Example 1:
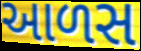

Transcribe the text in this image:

આળસ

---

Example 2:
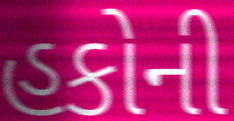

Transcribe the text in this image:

હકોની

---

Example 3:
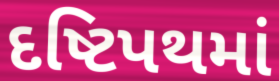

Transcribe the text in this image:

દષ્ટિપથમાં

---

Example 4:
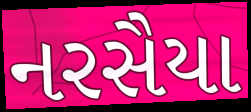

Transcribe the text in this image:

નરસૈયા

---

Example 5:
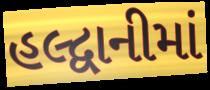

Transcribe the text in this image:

હલ્દ્વાનીમાં